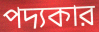
পদ্যকার